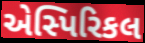
એસ્પિરિકલ